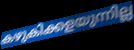
കഴുകിക്കളയുന്നില്ല